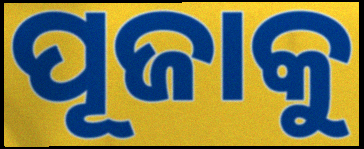
ପୂଜାକୁ